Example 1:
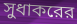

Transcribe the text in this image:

সুধাকরের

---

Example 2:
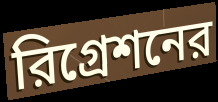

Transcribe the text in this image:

রিগ্রেশনের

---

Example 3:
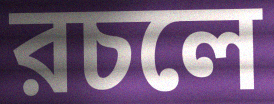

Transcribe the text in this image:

রচলে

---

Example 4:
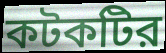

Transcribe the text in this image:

কটকটির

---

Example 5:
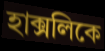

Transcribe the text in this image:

হাক্সলিকে